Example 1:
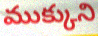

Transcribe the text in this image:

ముక్కుని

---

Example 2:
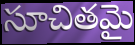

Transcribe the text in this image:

సూచితమై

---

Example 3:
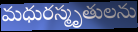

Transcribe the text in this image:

మధురస్మృతులను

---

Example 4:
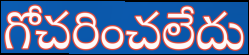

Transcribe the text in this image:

గోచరించలేదు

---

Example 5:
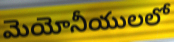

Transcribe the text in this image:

మెయోనీయులలో